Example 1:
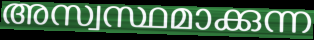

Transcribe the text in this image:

അസ്വസ്ഥമാക്കുന്ന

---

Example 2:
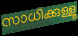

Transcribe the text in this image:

സാധിക്കുള്ളൂ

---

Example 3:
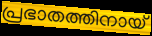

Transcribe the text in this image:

പ്രഭാതത്തിനായ്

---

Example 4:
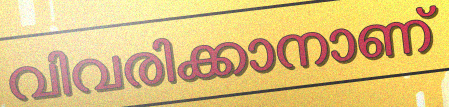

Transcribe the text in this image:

വിവരിക്കാനാണ്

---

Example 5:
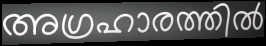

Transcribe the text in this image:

അഗ്രഹാരത്തിൽ